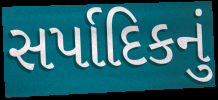
સર્પાદિકનું